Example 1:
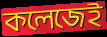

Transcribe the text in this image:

কলেজেই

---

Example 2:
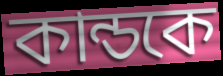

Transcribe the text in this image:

কান্ডকে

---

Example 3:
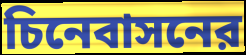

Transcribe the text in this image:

চিনেবাসনের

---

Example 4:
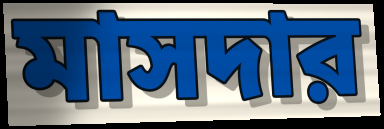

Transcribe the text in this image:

মাসদার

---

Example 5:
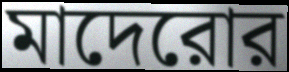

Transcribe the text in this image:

মাদেরোর